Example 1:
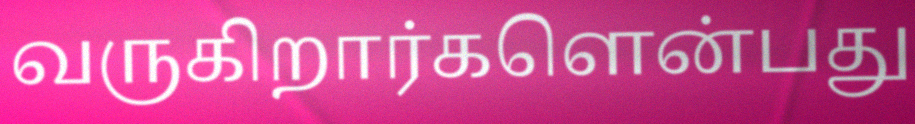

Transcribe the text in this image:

வருகிறார்களென்பது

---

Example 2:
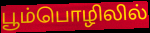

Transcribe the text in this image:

பூம்பொழிலில்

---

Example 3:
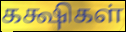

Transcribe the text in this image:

கக்ஷிகள்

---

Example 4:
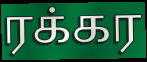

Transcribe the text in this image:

ரக்கர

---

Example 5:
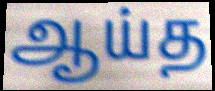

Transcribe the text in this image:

ஆய்த